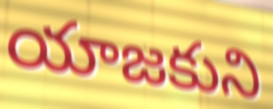
యాజకుని